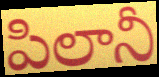
పిలానీ